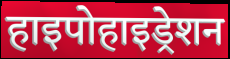
हाइपोहाइड्रेशन